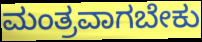
ಮಂತ್ರವಾಗಬೇಕು